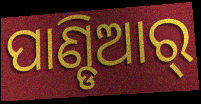
ପାଣ୍ଡିଆର୍